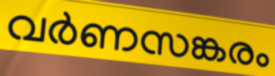
വർണസങ്കരം